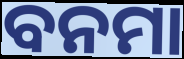
ବନମା